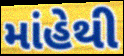
માંહેથી